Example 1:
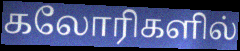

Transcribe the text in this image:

கலோரிகளில்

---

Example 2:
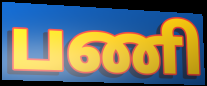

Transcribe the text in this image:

பணி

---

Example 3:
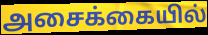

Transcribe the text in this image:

அசைக்கையில்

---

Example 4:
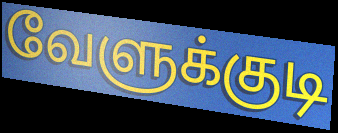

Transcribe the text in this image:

வேளுக்குடி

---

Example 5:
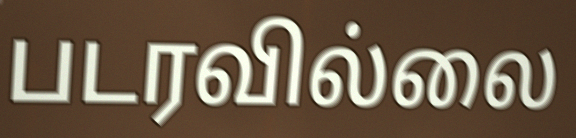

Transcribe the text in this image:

படரவில்லை